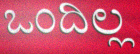
ಒಂದಿಲ್ಲ